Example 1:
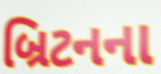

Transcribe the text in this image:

બ્રિટનના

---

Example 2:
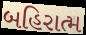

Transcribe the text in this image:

બહિરાત્મ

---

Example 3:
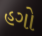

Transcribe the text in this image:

હગો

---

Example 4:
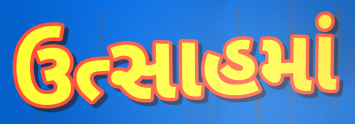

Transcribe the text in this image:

ઉત્સાહમાં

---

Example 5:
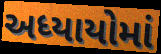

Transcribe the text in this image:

અધ્યાયોમાં